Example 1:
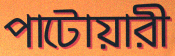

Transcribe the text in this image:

পাটোয়ারী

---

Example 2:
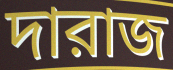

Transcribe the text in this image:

দারাজ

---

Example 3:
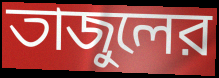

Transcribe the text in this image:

তাজুলের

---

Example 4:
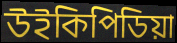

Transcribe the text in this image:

উইকিপিডিয়া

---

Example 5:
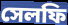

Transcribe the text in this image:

সেলফি